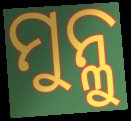
ମୁନ୍ଳୁ